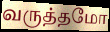
வருத்தமோ